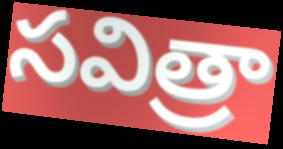
సవిత్రా